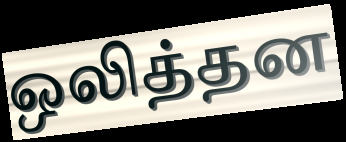
ஒலித்தன